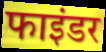
फाइंडर